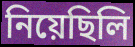
নিয়েছিলি